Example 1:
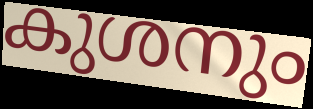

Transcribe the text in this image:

കുശനും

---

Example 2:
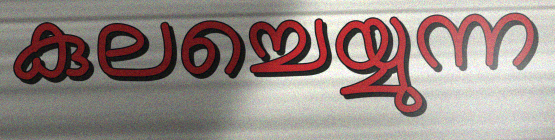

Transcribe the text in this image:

കുലച്ചെയ്യുന്ന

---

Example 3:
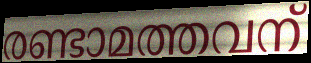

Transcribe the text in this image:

രണ്ടാമത്തവന്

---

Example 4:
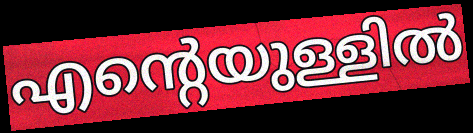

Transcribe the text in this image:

എന്റെയുള്ളിൽ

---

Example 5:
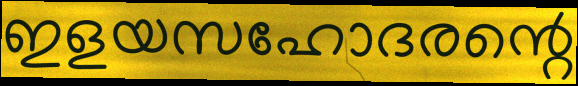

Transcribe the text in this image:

ഇളയസഹോദരന്റെ